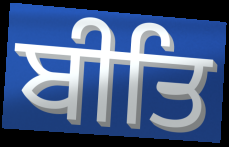
ਬੀਤਿ